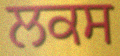
ਲਕਸ